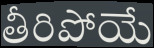
తీరిపోయే